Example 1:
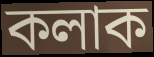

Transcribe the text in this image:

কলাক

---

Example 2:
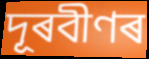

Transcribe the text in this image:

দূৰবীণৰ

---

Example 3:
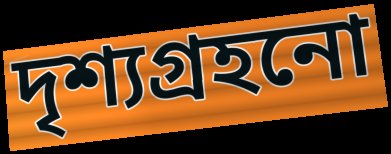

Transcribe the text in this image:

দৃশ্যগ্ৰহনো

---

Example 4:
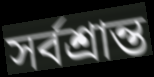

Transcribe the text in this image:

সৰ্বশ্ৰান্ত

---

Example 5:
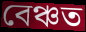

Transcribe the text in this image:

বেঞ্চত